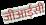
जीआईसी